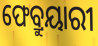
ଫେବ୍ରୁୟାରୀ